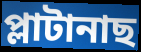
প্লাটানাছ